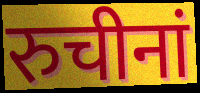
रुचीनां